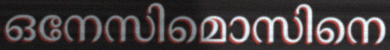
ഒനേസിമൊസിനെ